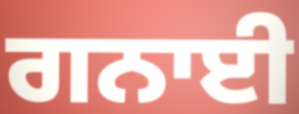
ਗਨਾਈ